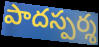
పాదస్పర్శ